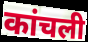
कांचली